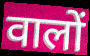
वालों